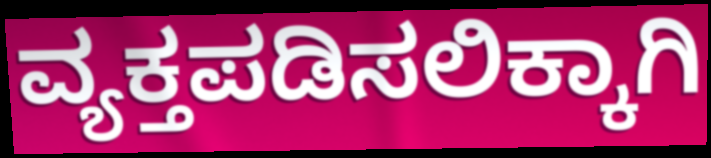
ವ್ಯಕ್ತಪಡಿಸಲಿಕ್ಕಾಗಿ